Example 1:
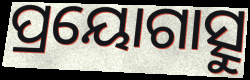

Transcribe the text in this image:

ପ୍ରୟୋଗାତ୍ସୁ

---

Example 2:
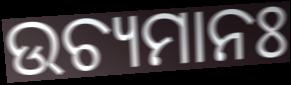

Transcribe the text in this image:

ଉଚ୍ୟମାନଃ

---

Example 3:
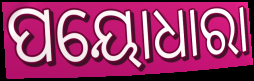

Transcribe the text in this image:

ପୟୋଧାରା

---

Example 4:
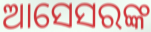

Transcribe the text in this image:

ଆସେସରଙ୍କ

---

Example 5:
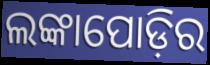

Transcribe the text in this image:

ଲଙ୍କାପୋଡ଼ିର